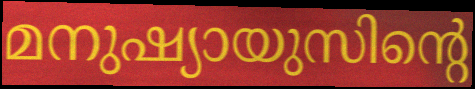
മനുഷ്യായുസിന്റെ